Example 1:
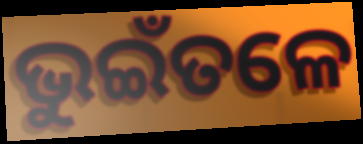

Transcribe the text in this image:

ଭୁଇଁତଳେ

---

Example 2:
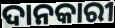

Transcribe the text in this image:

ଦାନକାରୀ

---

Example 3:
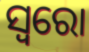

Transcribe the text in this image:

ସ୍ୱରୋ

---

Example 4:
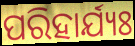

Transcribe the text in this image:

ପରିହାର୍ଯ୍ୟଃ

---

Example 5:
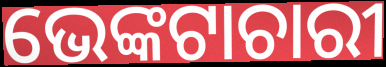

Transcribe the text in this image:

ଭେଙ୍କଟାଚାରୀ